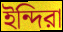
ইন্দিরা